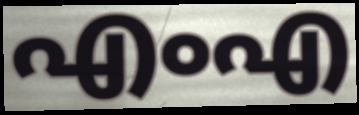
എംഎ